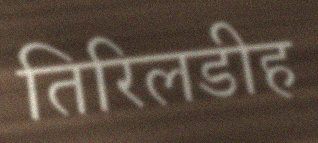
तिरिलडीह